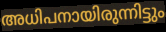
അധിപനായിരുന്നിട്ടും